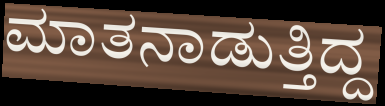
ಮಾತನಾಡುತ್ತಿದ್ದ